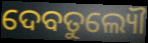
ଦେବତୁଲ୍ୟୌ